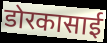
डोरकासाई